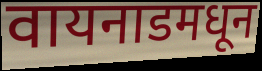
वायनाडमधून